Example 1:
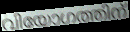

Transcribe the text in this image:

വിയോഗത്തിന്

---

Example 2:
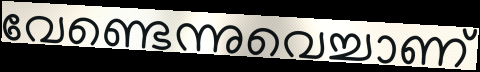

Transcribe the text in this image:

വേണ്ടെന്നുവെച്ചാണ്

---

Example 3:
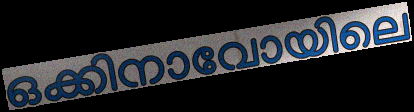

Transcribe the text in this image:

ഒക്കിനാവോയിലെ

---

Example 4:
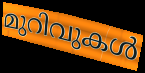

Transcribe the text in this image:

മുറിവുകൾ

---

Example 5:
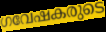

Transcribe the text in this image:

ഗവേഷകരുടെ